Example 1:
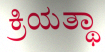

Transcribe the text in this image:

ಕ್ರಿಯತ್ಥಾ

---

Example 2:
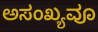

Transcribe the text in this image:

ಅಸಂಖ್ಯವೂ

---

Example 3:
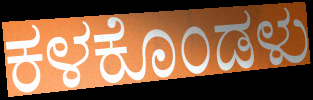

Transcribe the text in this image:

ಕಳಕೊಂಡಳು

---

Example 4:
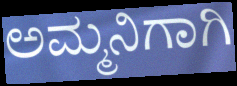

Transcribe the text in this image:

ಅಮ್ಮನಿಗಾಗಿ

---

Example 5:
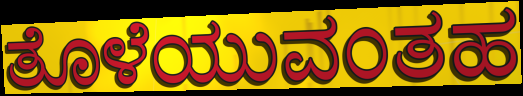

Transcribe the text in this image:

ತೊಳೆಯುವಂತಹ